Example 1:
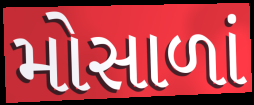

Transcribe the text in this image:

મોસાળાં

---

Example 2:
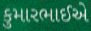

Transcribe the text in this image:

કુમારભાઈએ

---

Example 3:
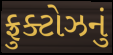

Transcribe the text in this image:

ફ્રુક્ટોઝનું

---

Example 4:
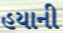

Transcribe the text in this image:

હયાની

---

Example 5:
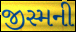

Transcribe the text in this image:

જીસ્મની